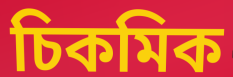
চিকমিক